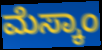
ಮೆಸ್ಕಾಂ